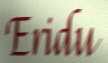
Eridu